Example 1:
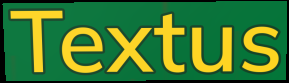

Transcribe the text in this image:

Textus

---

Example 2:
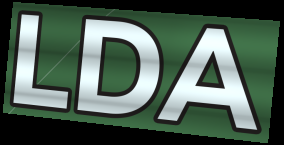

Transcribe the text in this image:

LDA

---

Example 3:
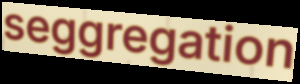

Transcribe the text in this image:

seggregation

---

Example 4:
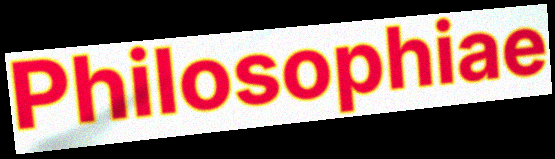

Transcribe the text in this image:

Philosophiae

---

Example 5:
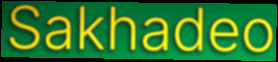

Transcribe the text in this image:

Sakhadeo